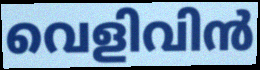
വെളിവിൻ